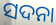
ସଦନା